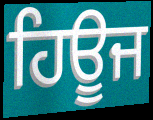
ਹਿਊਜ